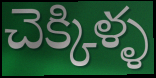
చెక్కిళ్ళ